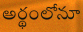
అర్థంలోనూ